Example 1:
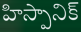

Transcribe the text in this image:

హిస్పానిక్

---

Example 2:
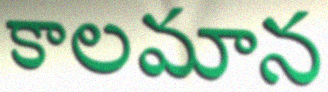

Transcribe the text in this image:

కాలమాన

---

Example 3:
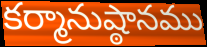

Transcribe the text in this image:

కర్మానుష్ఠానము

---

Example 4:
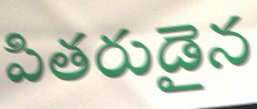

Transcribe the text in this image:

పితరుడైన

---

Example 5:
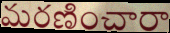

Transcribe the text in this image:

మరణించారా